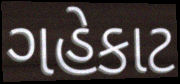
ગહેકાટ